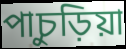
পাচুড়িয়া